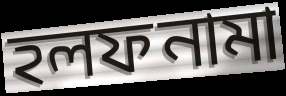
হলফনামা